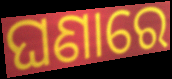
ଘଣାରେ